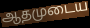
ஆதமுடைய